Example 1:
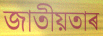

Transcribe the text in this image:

জাতীয়তাৰ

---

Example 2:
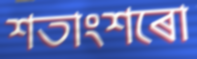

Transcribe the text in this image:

শতাংশৰো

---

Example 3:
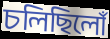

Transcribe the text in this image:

চলিছিলোঁ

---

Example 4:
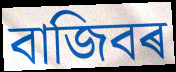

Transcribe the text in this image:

বাজিবৰ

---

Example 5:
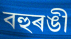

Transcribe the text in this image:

বহুৰঙী